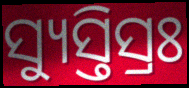
ସ୍ୟୁସ୍ତିସ୍ରଃ